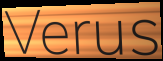
Verus